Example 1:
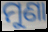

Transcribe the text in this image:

ମୁଣା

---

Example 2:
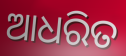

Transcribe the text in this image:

ଆଧରିତ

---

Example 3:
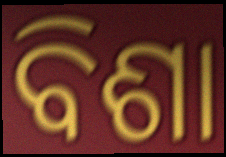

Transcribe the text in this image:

ବିଶା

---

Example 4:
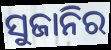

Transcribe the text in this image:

ସୁଜାନିର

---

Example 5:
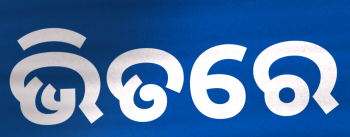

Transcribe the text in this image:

ଭିତରେ